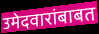
उमेदवारांबाबत